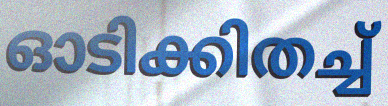
ഓടിക്കിതച്ച്